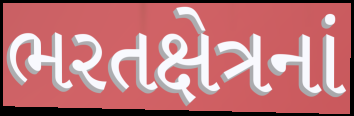
ભરતક્ષેત્રનાં